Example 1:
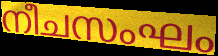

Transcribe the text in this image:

നീചസംഘം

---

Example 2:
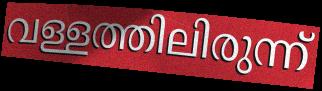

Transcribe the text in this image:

വള്ളത്തിലിരുന്ന്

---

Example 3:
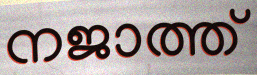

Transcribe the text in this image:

നജാത്ത്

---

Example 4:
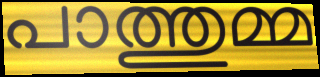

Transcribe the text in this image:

പാത്തുമ്മ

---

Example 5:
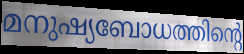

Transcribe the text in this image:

മനുഷ്യബോധത്തിന്റെ